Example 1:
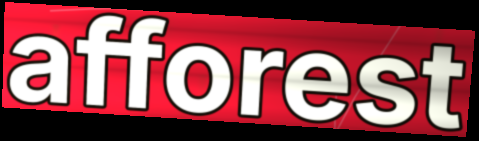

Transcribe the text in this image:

afforest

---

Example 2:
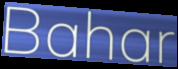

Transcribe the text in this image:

Bahar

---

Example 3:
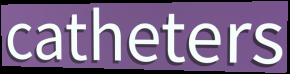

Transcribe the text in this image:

catheters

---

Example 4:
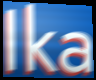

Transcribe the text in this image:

Ika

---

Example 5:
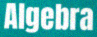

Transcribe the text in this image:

Algebra